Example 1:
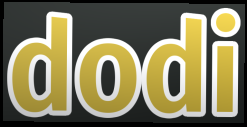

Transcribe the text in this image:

dodi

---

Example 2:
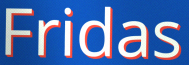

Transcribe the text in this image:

Fridas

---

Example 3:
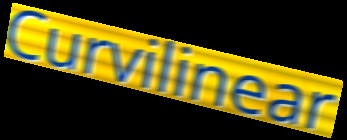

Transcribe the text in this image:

Curvilinear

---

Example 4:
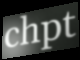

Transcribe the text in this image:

chpt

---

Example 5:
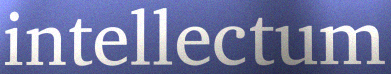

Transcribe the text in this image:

intellectum